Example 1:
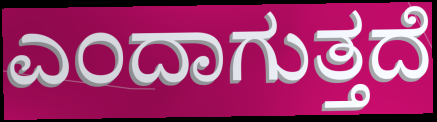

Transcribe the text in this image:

ಎಂದಾಗುತ್ತದೆ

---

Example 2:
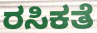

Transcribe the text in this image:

ರಸಿಕತೆ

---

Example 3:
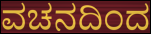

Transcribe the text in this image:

ವಚನದಿಂದ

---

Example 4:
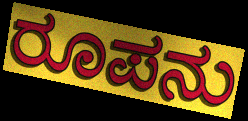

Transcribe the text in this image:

ರೂಪನು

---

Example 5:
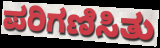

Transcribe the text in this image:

ಪರಿಗಣಿಸಿತು